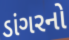
ડાંગરનો